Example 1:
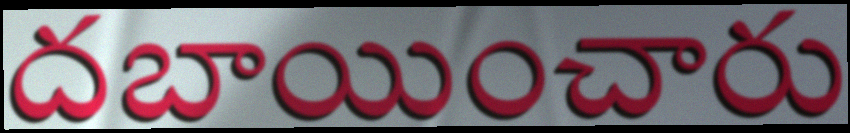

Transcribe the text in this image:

దబాయించారు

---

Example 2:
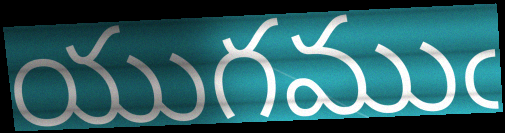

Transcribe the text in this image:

యుగముఁ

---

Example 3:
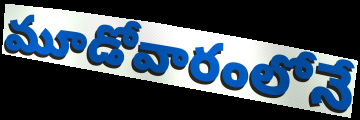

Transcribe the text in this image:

మూడోవారంలోనే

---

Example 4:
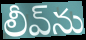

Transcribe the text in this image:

లీవ్‌ను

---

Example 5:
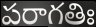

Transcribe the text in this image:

పరాగతిః